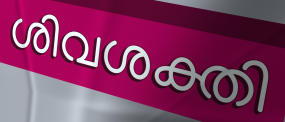
ശിവശക്തി